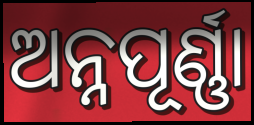
ଅନ୍ନପୂର୍ଣ୍ଣା